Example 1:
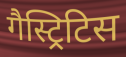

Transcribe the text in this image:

गैस्ट्रिटिस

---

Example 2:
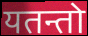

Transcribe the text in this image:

यतन्तो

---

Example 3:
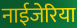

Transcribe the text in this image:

नाईजेरिया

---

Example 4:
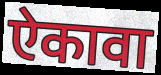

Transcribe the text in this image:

ऐकावा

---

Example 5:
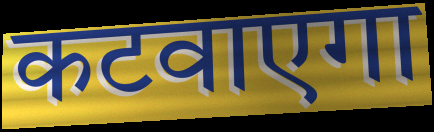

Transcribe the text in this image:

कटवाएगा